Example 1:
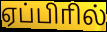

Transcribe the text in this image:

ஏப்பிரில்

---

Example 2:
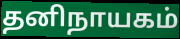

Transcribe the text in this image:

தனிநாயகம்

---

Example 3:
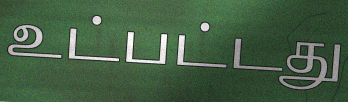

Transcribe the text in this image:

உட்பட்டது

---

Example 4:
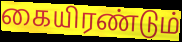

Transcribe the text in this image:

கையிரண்டும்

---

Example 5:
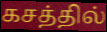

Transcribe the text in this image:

கசத்தில்